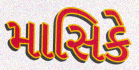
માસિકે